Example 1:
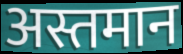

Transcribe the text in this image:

अस्तमान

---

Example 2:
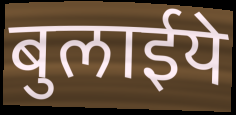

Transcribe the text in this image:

बुलाईये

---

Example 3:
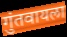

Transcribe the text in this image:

गुंतवायला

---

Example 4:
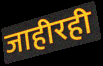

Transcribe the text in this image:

जाहीरही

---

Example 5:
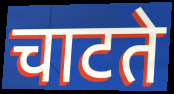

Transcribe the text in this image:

चाटते